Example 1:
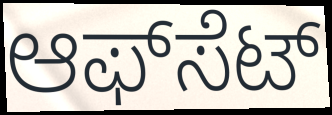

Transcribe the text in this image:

ಆಫ್‍ಸೆಟ್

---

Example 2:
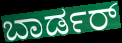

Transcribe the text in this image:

ಬಾರ್ಡರ್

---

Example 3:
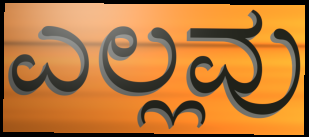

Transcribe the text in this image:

ಎಲ್ಲವು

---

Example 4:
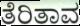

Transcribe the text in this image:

ತೆರಿತಾವ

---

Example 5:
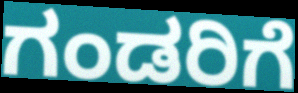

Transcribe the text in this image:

ಗಂಡರಿಗೆ